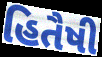
હિતૈષી